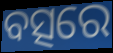
ବତ୍ସରେ